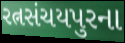
રત્નસંચયપુરના